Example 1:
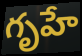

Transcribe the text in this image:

గృహే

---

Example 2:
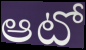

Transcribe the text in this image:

ఆటో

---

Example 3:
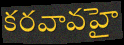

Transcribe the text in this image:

కరవావహై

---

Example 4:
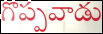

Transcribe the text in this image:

గొప్పవాడు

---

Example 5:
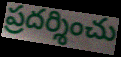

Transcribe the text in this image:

ప్రదర్శించు